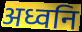
अध्वनि